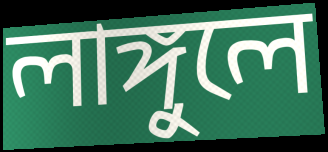
লাঙ্গুলে